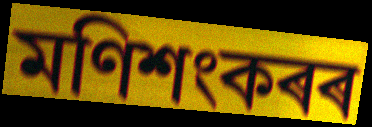
মণিশংকৰৰ